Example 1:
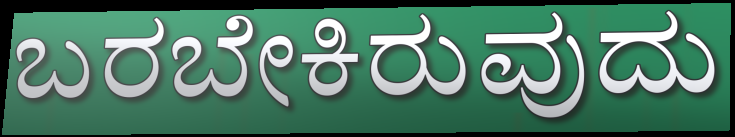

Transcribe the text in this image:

ಬರಬೇಕಿರುವುದು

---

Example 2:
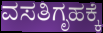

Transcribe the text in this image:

ವಸತಿಗೃಹಕ್ಕೆ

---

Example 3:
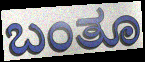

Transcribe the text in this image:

ಬಂತೂ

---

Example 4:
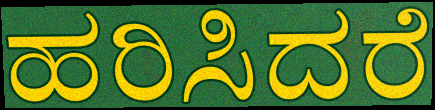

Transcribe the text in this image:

ಹರಿಸಿದರೆ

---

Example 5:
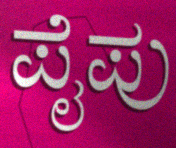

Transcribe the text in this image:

ಪೈಪು